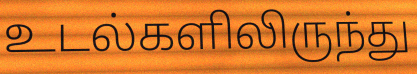
உடல்களிலிருந்து